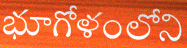
భూగోళంలోని